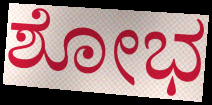
ಶೋಭ